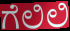
ಗೆಲಿಲಿ